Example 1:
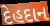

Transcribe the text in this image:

દેહદાન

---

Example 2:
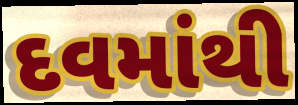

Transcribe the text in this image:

દવમાંથી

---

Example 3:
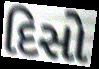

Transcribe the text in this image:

દિસો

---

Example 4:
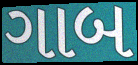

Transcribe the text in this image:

ગાબ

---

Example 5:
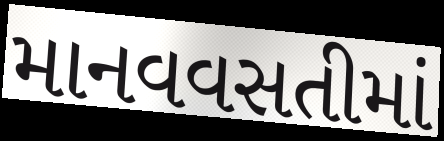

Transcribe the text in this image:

માનવવસતીમાં